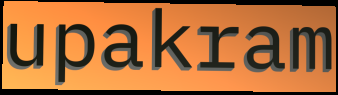
upakram